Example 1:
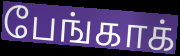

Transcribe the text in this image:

பேங்காக்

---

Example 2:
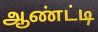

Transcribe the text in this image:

ஆண்ட்டி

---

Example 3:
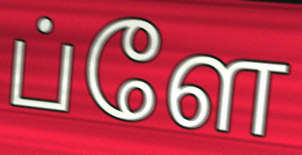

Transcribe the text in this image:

ப்ளே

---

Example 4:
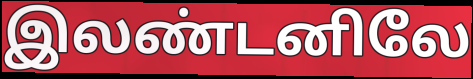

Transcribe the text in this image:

இலண்டனிலே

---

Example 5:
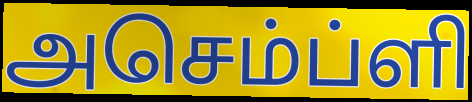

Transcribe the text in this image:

அசெம்ப்ளி